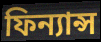
ফিন্যান্স